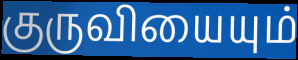
குருவியையும்